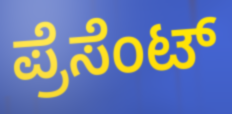
ಪ್ರೆಸೆಂಟ್